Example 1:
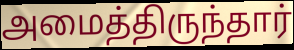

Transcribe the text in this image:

அமைத்திருந்தார்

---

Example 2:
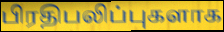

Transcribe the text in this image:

பிரதிபலிப்புகளாக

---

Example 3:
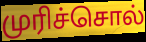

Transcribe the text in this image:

முரிச்சொல்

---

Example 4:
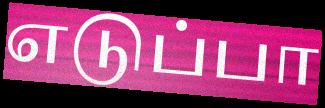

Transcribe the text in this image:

எடுப்பா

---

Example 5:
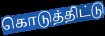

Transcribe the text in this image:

கொடுத்திட்டு